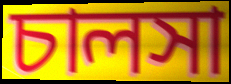
চালসা